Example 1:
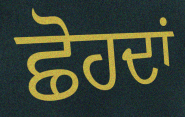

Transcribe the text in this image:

ਛੋਹਦਾਂ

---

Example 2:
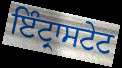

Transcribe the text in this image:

ਇੰਟ੍ਰਾਸਟੇਟ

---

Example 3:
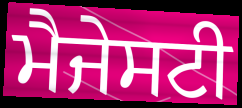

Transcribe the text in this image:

ਮੈਜੇਸਟੀ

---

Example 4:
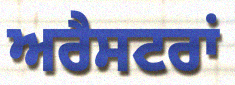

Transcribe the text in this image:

ਅਰੈਸਟਰਾਂ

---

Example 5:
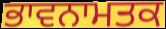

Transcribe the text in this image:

ਭਾਵਨਾਮਤਕ